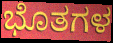
ಭೊತಗಳ